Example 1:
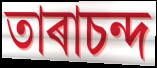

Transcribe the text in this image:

তাৰাচন্দ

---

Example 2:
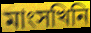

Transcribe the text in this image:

মাংসখিনি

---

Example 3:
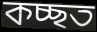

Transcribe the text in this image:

কচ্ছত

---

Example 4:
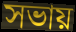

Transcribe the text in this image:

সভায়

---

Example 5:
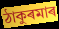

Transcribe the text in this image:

ঠাকুৰমাৰ